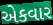
એકવાર